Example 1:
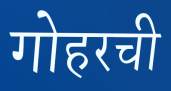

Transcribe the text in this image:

गोहरची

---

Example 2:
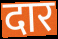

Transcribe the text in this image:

दार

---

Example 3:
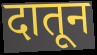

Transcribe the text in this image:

दातून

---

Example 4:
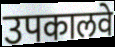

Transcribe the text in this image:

उपकालवे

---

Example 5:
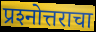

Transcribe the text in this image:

प्रश्‍नोत्तराचा